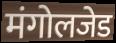
मंगोलजेड